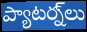
ప్యాటర్న్‌లు